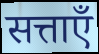
सत्ताएँ